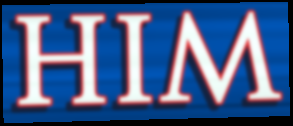
HIM